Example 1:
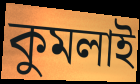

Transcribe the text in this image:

কুমলাই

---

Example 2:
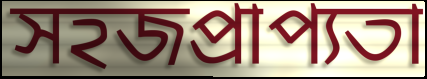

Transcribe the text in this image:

সহজপ্রাপ্যতা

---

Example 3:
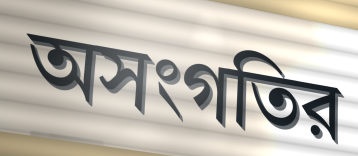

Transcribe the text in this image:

অসংগতির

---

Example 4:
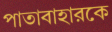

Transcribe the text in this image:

পাতাবাহারকে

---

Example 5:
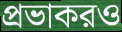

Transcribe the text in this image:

প্রভাকরও